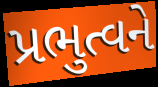
પ્રભુત્વને